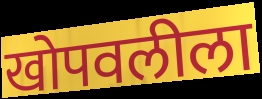
खोपवलीला